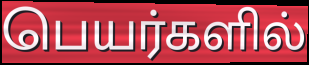
பெயர்களில்